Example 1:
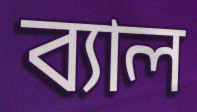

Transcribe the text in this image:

ব্যাল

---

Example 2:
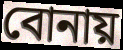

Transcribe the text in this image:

বোনায়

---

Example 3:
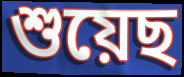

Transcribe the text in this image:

শুয়েছ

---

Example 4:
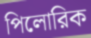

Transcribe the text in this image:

পিলোরিক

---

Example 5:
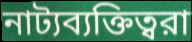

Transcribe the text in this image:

নাট্যব্যক্তিত্বরা